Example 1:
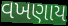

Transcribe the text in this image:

વખણાય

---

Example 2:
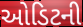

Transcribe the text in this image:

ઓડિટની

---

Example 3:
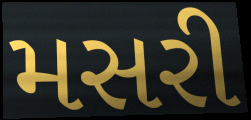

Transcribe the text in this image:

મસરી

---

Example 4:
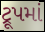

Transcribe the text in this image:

ટ્રૂપમાં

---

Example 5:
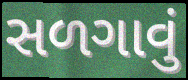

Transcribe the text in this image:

સળગાવું